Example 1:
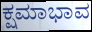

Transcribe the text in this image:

ಕ್ಷಮಾಭಾವ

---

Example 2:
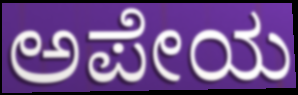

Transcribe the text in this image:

ಅಪೇಯ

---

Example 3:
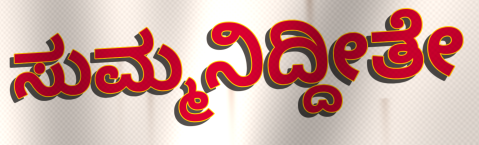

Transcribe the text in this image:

ಸುಮ್ಮನಿದ್ದೀತೇ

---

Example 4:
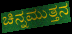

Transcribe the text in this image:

ಚಿನ್ನಮುತ್ತನ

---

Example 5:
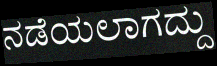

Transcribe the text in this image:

ನಡೆಯಲಾಗದ್ದು